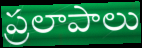
ప్రలాపాలు